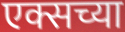
एक्सच्या